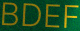
BDEF